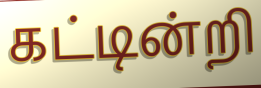
கட்டின்றி